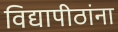
विद्यापीठांना